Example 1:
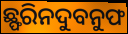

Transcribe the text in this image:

ଛ୍ଫରିନଦୁବନୁଫ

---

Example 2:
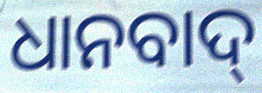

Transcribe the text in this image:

ଧାନବାଦ୍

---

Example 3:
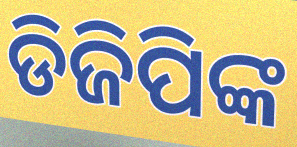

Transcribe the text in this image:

ଡିଜିପିଙ୍କ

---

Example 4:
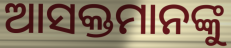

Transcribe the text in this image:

ଆସକ୍ତମାନଙ୍କୁ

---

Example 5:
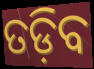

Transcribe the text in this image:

ତଡ଼ିବ